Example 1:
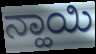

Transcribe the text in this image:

ನ್ಹಾಯಿ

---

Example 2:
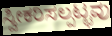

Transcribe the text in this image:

ಸ್ವೀಕರಿಸಲ್ಪಟ್ಟವು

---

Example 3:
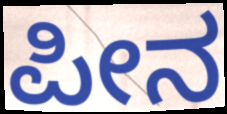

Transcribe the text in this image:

ಪೀನ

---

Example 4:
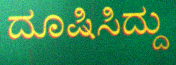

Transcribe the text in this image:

ದೂಷಿಸಿದ್ದು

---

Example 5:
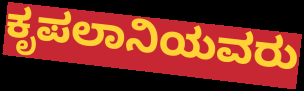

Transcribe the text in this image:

ಕೃಪಲಾನಿಯವರು